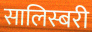
सालिस्बरी